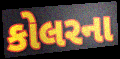
કોલરના